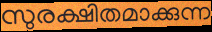
സുരക്ഷിതമാക്കുന്ന